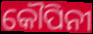
କୌପିନୀ